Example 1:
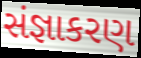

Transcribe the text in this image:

સંજ્ઞાકરણ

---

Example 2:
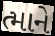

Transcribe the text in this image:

ત્માને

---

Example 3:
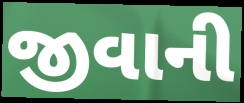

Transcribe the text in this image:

જીવાની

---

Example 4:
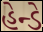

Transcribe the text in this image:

હેન્ડે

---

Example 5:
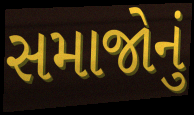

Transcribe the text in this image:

સમાજોનું